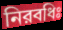
নিরবধিঃ